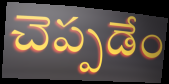
చెప్పడేం